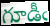
గూడీఁ